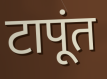
टापूंत